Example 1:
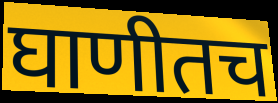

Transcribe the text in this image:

घाणीतच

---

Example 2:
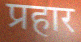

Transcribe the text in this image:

प्रहार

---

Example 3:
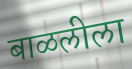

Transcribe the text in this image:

बाळलीला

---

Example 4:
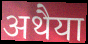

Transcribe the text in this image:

अथैया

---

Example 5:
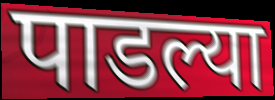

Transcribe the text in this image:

पाडल्या